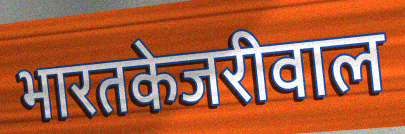
भारतकेजरीवाल